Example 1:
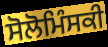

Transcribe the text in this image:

ਸੋਲੋਮਿੰਸਕੀ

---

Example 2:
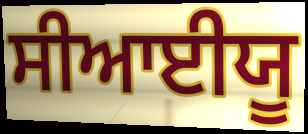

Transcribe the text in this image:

ਸੀਆਈਯੂ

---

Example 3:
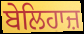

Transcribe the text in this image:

ਬੇਲਿਹਾਜ਼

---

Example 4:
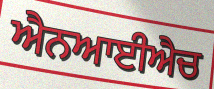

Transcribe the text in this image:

ਐਨਆਈਐਚ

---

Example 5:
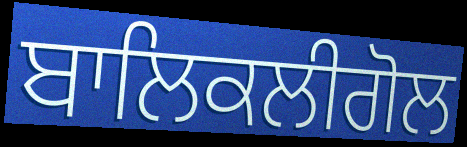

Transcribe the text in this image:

ਬਾਲਿਕਲੀਗੋਲ